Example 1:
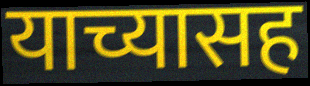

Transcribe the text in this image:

याच्यासह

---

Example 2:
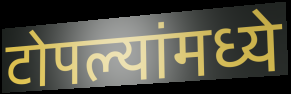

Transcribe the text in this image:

टोपल्यांमध्ये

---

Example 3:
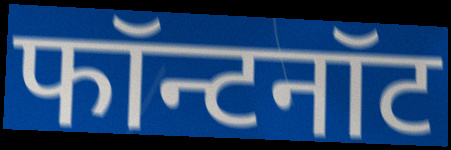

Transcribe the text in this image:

फॉन्टनॉट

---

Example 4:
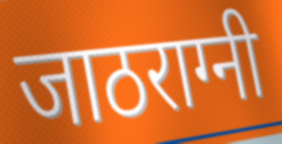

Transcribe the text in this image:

जाठराग्नी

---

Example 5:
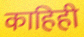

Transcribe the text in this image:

काहिही